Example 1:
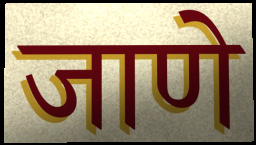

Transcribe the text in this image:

जाणे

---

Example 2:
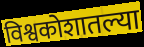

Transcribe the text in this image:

विश्वकोशातल्या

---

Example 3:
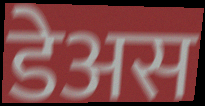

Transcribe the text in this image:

डेअस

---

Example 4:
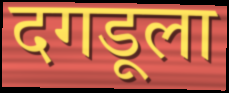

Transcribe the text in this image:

दगडूला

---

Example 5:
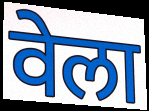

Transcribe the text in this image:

वेला